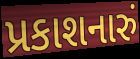
પ્રકાશનારું